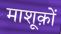
माशूक़ों